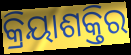
କ୍ରିୟାଶକ୍ତିର